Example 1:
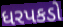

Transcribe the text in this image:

ધરપકડો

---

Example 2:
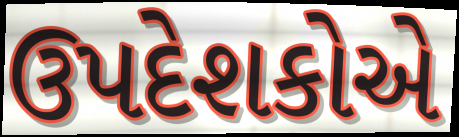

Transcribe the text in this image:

ઉપદેશકોએ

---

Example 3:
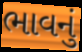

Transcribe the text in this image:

ભાવનું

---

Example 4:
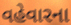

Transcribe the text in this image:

વહેવારના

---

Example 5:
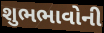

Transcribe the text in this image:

શુભભાવોની